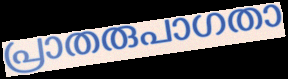
പ്രാതരുപാഗതാ